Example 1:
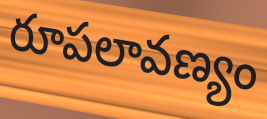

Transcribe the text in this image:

రూపలావణ్యం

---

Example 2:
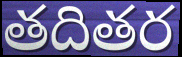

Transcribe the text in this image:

తదితర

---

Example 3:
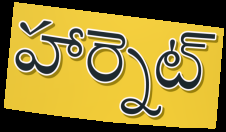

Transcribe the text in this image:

హార్నెట్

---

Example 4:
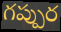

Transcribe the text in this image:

గప్పుర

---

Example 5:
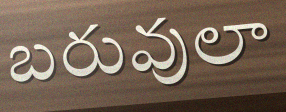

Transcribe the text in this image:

బరువులా